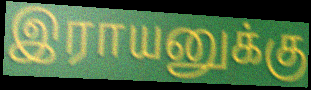
இராயனுக்கு